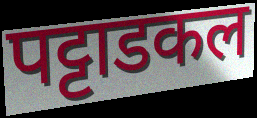
पट्टाडकल